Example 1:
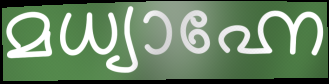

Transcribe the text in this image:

മധ്യാഹ്നേ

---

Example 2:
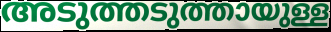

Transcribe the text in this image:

അടുത്തടുത്തായുള്ള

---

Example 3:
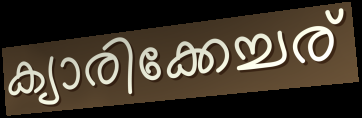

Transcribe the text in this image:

ക്യാരിക്കേച്ചര്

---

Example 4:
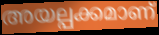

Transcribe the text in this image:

അയല്പക്കമാണ്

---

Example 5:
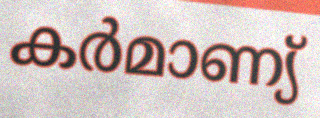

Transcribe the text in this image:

കർമാണ്യ്